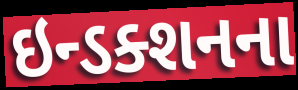
ઇન્ડક્શનના